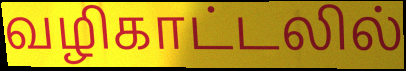
வழிகாட்டலில்